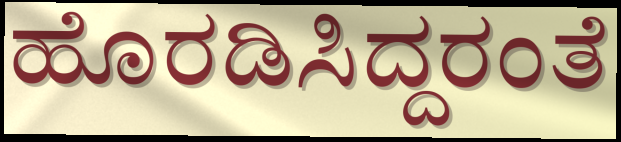
ಹೊರಡಿಸಿದ್ದರಂತೆ